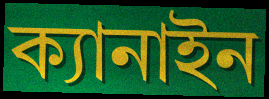
ক্যানাইন